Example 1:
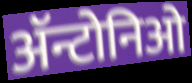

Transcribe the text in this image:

ॲन्टोनिओ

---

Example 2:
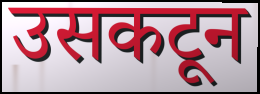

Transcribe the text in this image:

उसकटून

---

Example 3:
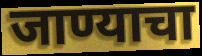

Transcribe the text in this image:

जाण्याचा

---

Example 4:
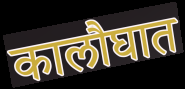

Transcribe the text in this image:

कालौघात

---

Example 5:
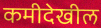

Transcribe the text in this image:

कमीदेखील